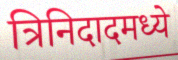
त्रिनिदादमध्ये